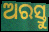
ଅରସ୍ତୁ